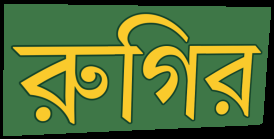
রুগির